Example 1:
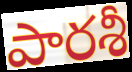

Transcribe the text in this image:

పారశీ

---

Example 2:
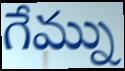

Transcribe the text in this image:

గేమ్ను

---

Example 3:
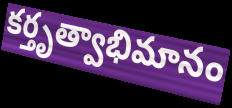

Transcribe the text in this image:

కర్తృత్వాభిమానం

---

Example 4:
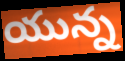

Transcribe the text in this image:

యున్న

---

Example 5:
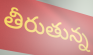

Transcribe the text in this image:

తీరుతున్న